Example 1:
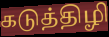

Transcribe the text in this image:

கடுத்திழி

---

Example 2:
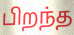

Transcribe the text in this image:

பிறந்த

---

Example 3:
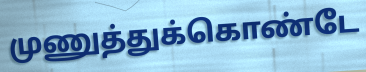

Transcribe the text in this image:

முணுத்துக்கொண்டே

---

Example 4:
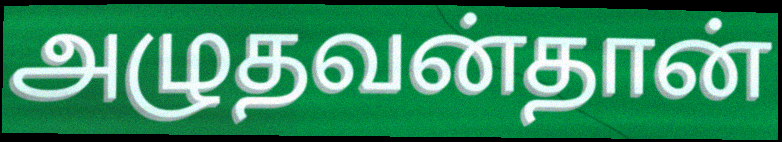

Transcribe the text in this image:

அழுதவன்தான்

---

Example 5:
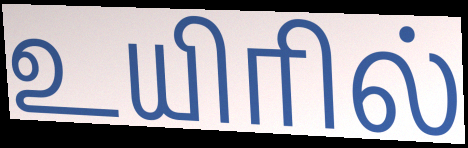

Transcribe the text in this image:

உயிரில்